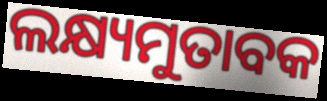
ଲକ୍ଷ୍ୟମୁତାବକ